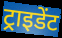
ट्राइडेंट